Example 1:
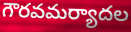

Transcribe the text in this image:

గౌరవమర్యాదల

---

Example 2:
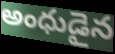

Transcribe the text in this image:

అంధుడైన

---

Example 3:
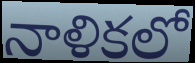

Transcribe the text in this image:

నాళికలో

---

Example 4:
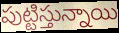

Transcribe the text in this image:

పుట్టిస్తున్నాయి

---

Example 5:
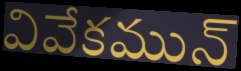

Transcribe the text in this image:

వివేకమున్